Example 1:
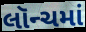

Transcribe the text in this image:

લૉન્ચમાં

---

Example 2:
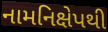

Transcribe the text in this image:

નામનિક્ષેપથી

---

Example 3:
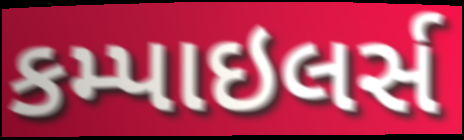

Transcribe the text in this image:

કમ્પાઇલર્સ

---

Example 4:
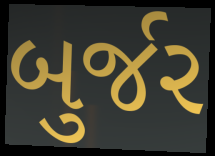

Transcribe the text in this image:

બુર્જર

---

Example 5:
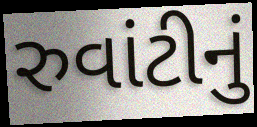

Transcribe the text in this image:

રુવાંટીનું